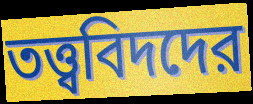
তত্ত্ববিদদের